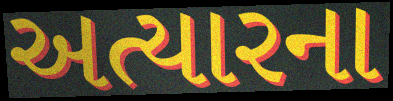
અત્યારના